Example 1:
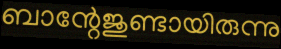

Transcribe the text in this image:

ബാന്റേജുണ്ടായിരുന്നു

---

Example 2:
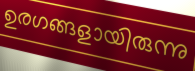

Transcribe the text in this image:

ഉരഗങ്ങളായിരുന്നു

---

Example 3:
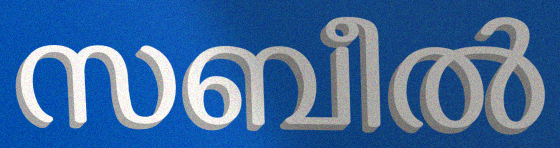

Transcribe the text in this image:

സബീൽ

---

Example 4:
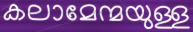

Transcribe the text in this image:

കലാമേന്മയുള്ള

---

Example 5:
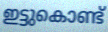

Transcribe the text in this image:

ഇട്ടുകൊണ്ട്